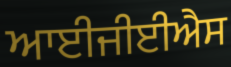
ਆਈਜੀਈਐਸ